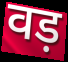
वड़